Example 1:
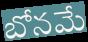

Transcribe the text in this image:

బోనమే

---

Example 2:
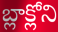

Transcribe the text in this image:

బ్లాక్లోని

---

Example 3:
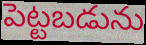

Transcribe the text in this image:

పెట్టబడును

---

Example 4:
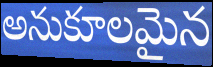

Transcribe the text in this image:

అనుకూలమైన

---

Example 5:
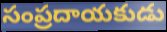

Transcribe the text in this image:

సంప్రదాయకుడు